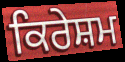
ਕਿਰੇਸ਼ਮ